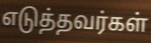
எடுத்தவர்கள்